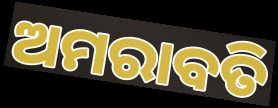
ଅମରାବତି